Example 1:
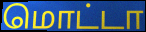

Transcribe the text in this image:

மொட்டா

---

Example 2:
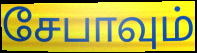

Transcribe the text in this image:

சேபாவும்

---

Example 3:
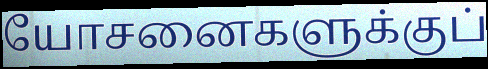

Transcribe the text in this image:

யோசனைகளுக்குப்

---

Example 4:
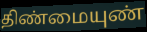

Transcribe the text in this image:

திண்மையுண்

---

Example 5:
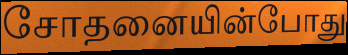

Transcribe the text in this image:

சோதனையின்போது